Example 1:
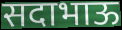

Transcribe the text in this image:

सदाभाऊ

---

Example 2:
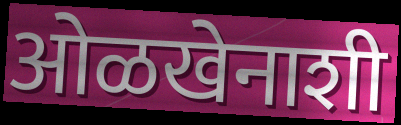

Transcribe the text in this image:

ओळखेनाशी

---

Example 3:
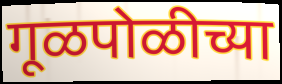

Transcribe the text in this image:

गूळपोळीच्या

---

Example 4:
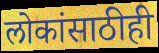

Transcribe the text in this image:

लोकांसाठीही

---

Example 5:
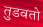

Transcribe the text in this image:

तुडवतो